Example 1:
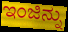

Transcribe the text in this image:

ಇಂಜಿನ್ನು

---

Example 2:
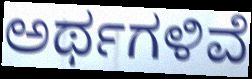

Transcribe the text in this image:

ಅರ್ಥಗಳಿವೆ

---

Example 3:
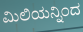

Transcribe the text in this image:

ಮಿಲಿಯನ್ನಿಂದ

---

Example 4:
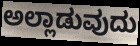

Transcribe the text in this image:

ಅಲ್ಲಾಡುವುದು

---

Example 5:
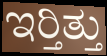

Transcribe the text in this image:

ಇರ್‍ತಿತ್ತು